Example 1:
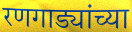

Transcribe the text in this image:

रणगाड्यांच्या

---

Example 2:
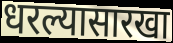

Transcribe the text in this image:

धरल्यासारखा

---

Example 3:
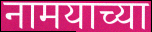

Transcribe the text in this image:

नामयाच्या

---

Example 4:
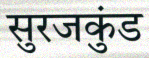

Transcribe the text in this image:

सुरजकुंड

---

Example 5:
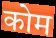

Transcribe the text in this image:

कोम